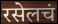
रसेलचं